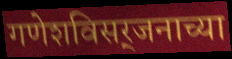
गणेशविसर्जनाच्या